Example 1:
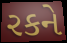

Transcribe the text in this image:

રકને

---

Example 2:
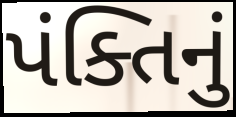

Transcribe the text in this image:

પંક્તિનું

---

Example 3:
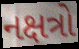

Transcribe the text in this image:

નક્ષત્રો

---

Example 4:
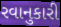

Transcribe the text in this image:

રવાનુકારી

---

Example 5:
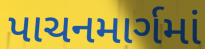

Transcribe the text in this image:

પાચનમાર્ગમાં